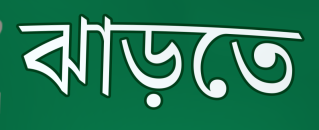
ঝাড়তে